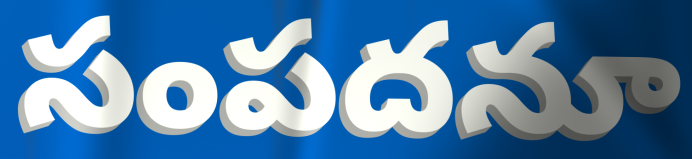
సంపదనూ